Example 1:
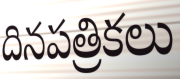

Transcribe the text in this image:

దినపత్రికలు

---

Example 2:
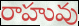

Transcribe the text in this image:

రాహువు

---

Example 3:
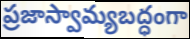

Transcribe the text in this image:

ప్రజాస్వామ్యబద్ధంగా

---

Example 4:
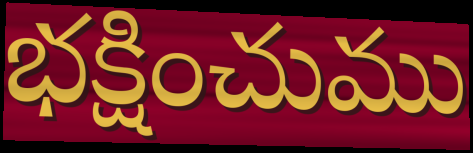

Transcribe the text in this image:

భక్షించుము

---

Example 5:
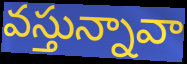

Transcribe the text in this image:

వస్తున్నావా